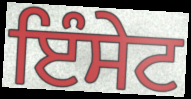
ਇੰਸੇਟ